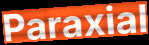
Paraxial